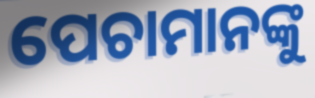
ପେଚାମାନଙ୍କୁ